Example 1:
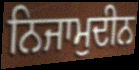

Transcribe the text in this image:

ਨਿਜਾਮੁਦੀਨ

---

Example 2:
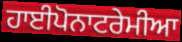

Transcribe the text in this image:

ਹਾਈਪੋਨਾਟਰੇਮੀਆ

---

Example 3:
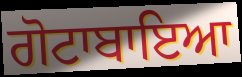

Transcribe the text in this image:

ਗੋਟਾਬਾਇਆ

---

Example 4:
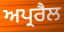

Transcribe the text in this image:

ਅਪ੍ਰਰੈਲ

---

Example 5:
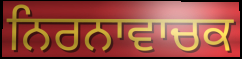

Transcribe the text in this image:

ਨਿਰਨਾਵਾਚਕ